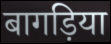
बागड़िया